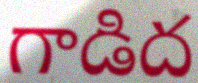
గాడిద